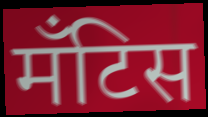
मँटिस